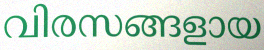
വിരസങ്ങളായ